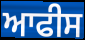
ਆਫੀਸ